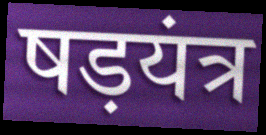
षड़यंत्र